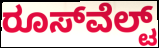
ರೂಸ್‍ವೆಲ್ಟ್